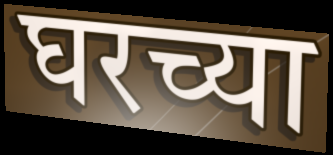
घरच्या